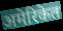
अमेरिकेत